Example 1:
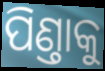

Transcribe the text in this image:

ପିଣ୍ତାକୁ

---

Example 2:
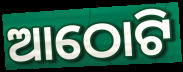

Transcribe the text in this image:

ଆଠୋଟି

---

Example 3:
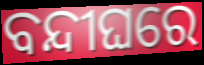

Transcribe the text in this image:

ବନ୍ଦୀଘରେ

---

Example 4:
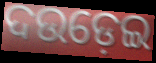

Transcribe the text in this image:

ଦଉଡ଼େଇ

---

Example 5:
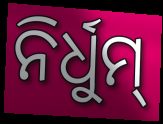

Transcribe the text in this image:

ନିର୍ଧୁମ୍